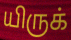
யிருக்